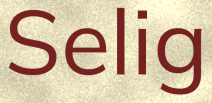
Selig